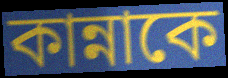
কান্নাকে